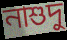
নাশুদু